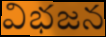
విభజన